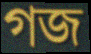
গজ